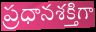
ప్రధానశక్తిగా